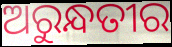
ଅରୁନ୍ଧତୀର